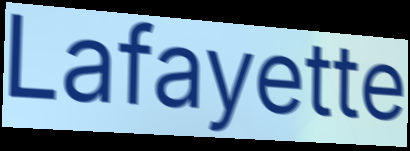
Lafayette